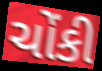
ચોંકી